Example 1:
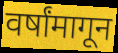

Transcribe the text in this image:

वर्षांमागून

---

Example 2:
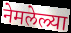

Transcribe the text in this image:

नेमलेल्या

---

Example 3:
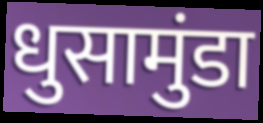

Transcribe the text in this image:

धुसामुंडा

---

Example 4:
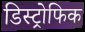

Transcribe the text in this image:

डिस्ट्रोफिक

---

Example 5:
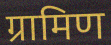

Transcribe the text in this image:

ग्रामिण